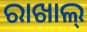
ରାଖାଲ୍